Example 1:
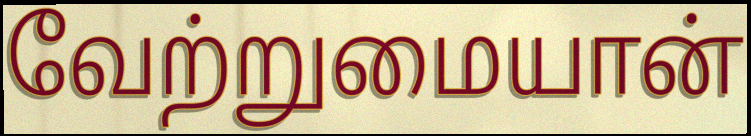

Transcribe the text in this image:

வேற்றுமையான்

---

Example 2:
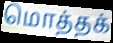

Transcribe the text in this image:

மொத்தக்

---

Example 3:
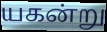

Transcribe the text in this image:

யகன்று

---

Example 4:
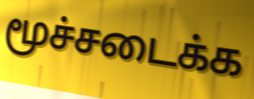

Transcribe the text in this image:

மூச்சடைக்க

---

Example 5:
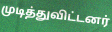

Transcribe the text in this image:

முடித்துவிட்டனர்